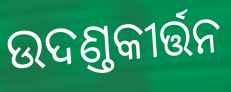
ଉଦଣ୍ଡକୀର୍ତ୍ତନ